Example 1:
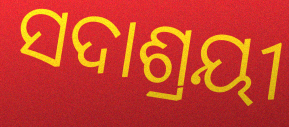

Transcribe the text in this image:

ସଦାଶ୍ରୟୀ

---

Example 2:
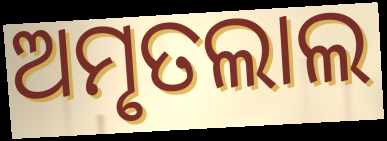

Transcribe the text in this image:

ଅମୃତଲାଲ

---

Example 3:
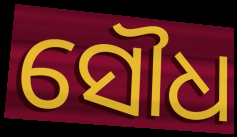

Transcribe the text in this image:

ସୌଧ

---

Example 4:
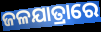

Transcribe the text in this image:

ଜଳଯାତ୍ରାରେ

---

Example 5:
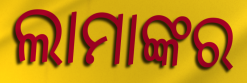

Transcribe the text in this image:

ଲାମାଙ୍କର